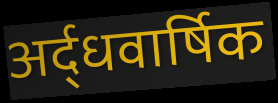
अर्द्धवार्षिक